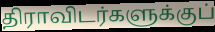
திராவிடர்களுக்குப்